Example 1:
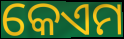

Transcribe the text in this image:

କେଏମ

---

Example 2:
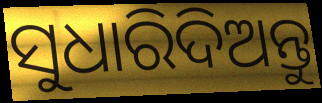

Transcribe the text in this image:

ସୁଧାରିଦିଅନ୍ତୁ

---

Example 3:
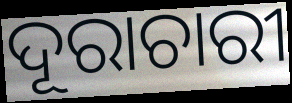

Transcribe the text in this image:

ଦୂରାଚାରୀ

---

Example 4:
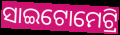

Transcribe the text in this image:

ସାଇଟୋମେଟ୍ରି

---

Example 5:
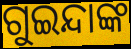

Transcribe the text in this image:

ଗୁଇନ୍ଦାଙ୍କ